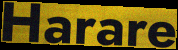
Harare